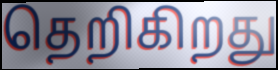
தெறிகிறது